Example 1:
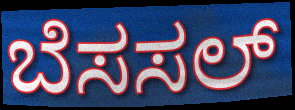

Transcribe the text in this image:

ಬೆಸಸಲ್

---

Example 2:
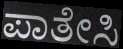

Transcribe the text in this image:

ಪಾತೇಸಿ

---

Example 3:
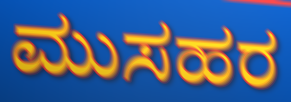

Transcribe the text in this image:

ಮುಸಹರ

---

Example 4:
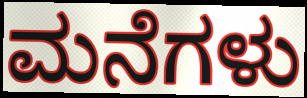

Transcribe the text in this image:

ಮನೆಗಳು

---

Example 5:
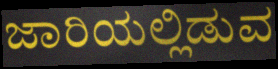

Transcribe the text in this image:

ಜಾರಿಯಲ್ಲಿಡುವ